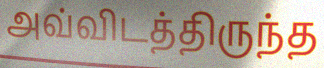
அவ்விடத்திருந்த